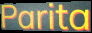
Parita